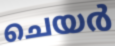
ചെയർ